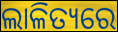
ଲାଳିତ୍ୟରେ